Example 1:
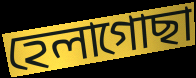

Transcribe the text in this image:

হেলাগোছা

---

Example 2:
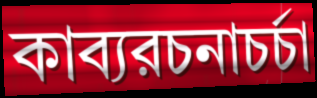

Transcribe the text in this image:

কাব্যরচনাচর্চা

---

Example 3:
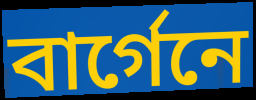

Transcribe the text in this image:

বার্গেনে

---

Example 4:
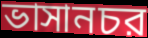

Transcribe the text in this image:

ভাসানচর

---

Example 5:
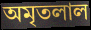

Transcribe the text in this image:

অমৃতলাল